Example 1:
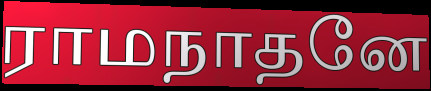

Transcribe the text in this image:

ராமநாதனே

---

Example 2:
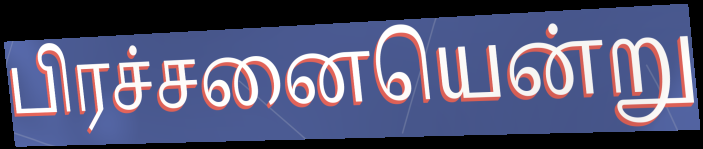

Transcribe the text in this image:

பிரச்சனையென்று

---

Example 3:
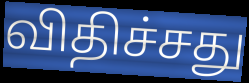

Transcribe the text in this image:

விதிச்சது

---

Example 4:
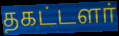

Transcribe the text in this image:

தகட்டளர்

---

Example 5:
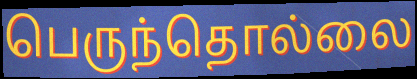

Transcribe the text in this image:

பெருந்தொல்லை